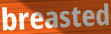
breasted